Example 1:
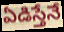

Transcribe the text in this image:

ఏడిస్తేనే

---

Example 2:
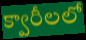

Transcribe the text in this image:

క్వారీలలో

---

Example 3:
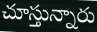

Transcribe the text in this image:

చూస్తున్నారు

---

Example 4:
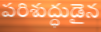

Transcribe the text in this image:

పరిశుద్ధుడైన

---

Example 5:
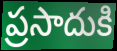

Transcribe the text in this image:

ప్రసాదుకి